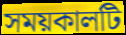
সময়কালটি